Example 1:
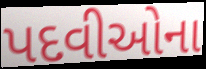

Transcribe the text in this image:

પદવીઓના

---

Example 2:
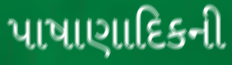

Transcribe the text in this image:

પાષાણાદિકની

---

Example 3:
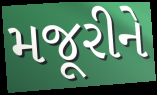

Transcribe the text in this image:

મજૂરીને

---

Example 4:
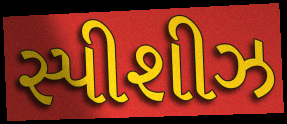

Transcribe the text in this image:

સ્પીશીઝ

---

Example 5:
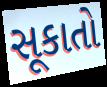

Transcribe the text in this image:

સૂકાતો